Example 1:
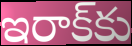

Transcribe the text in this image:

ఇరాక్‌కు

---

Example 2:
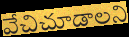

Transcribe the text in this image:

వేచిచూడాలని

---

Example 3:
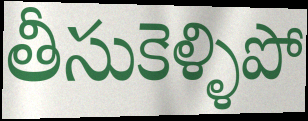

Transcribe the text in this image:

తీసుకెళ్ళిపో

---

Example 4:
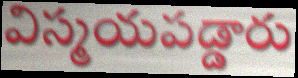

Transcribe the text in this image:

విస్మయపడ్డారు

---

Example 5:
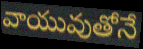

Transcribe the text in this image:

వాయువుతోనే